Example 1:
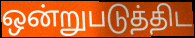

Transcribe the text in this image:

ஒன்றுபடுத்திட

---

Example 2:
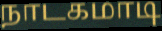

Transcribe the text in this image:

நாடகமாடி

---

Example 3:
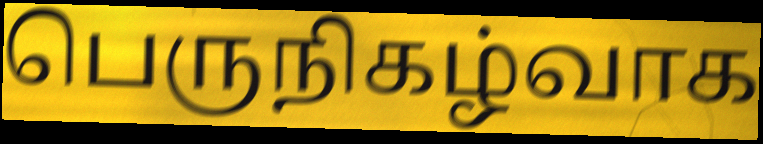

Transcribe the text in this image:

பெருநிகழ்வாக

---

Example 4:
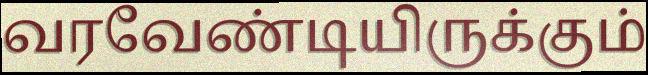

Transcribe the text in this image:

வரவேண்டியிருக்கும்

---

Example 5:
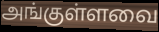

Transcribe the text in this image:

அங்குள்ளவை